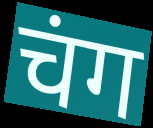
चंग